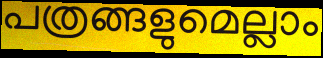
പത്രങ്ങളുമെല്ലാം